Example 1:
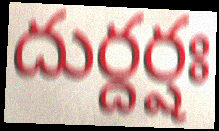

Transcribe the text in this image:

దుర్దర్షః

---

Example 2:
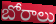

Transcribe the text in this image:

బోరాలు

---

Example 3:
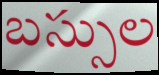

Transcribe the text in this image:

బస్సుల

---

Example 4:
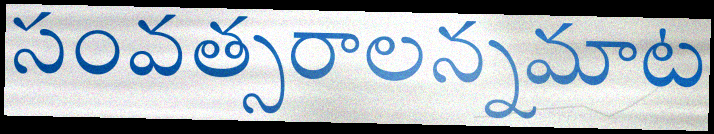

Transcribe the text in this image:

సంవత్సరాలన్నమాట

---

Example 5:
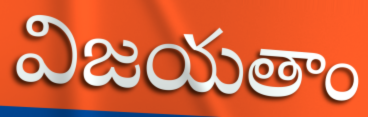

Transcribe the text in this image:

విజయతాం